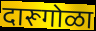
दारूगोळा